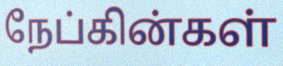
நேப்கின்கள்